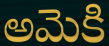
అమెకి